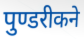
पुण्डरीकने